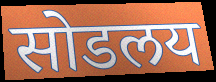
सोडलय